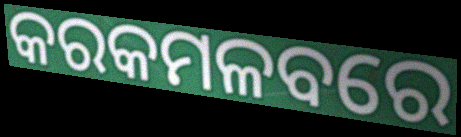
କରକମଳବରେ